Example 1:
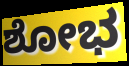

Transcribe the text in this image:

ಶೋಭ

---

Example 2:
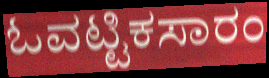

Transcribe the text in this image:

ಓವಟ್ಟಿಕಸಾರಂ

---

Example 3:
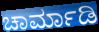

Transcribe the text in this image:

ಚಾರ್ಮಾಡಿ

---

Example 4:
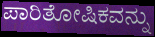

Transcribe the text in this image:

ಪಾರಿತೋಷಿಕವನ್ನು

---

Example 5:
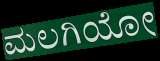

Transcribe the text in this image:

ಮಲಗಿಯೋ